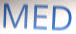
MED